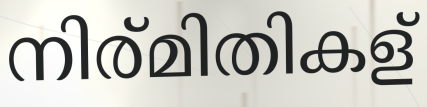
നിര്മിതികള്